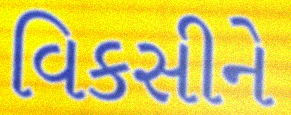
વિકસીને